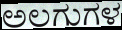
ಅಲಗುಗಳ